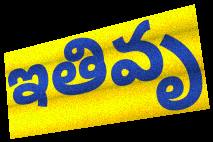
ఇతివృ